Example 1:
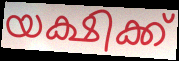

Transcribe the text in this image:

യക്ഷിക്ക്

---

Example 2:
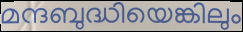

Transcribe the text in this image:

മന്ദബുദ്ധിയെങ്കിലും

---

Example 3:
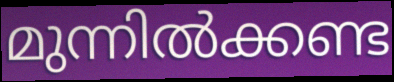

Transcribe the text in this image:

മുന്നിൽക്കണ്ട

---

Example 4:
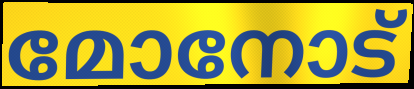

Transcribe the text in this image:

മോനോട്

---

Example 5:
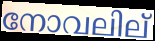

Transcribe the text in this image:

നോവലില്